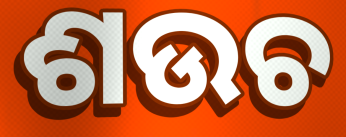
ଶଉଚ